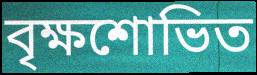
বৃক্ষশোভিত